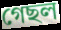
গেছল